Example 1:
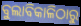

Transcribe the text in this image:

ବୁଲାବିକାଳିଠାରୁ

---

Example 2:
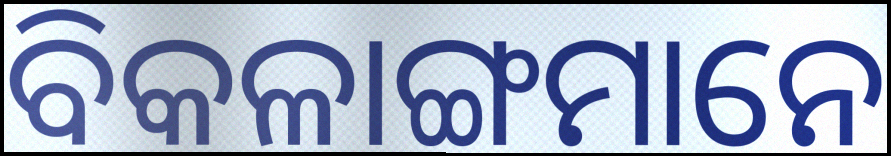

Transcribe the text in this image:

ବିକଳାଙ୍ଗମାନେ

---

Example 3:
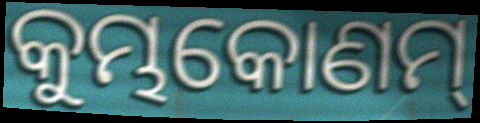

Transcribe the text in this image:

କୁମ୍ଭକୋଣମ୍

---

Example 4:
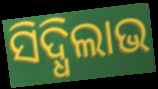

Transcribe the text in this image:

ସିଦ୍ଧିଲାଭ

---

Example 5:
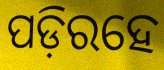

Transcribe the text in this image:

ପଡ଼ିରହେ